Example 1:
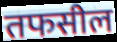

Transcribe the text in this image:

तफसील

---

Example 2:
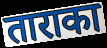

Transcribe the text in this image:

ताराका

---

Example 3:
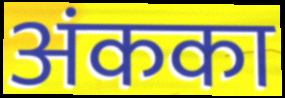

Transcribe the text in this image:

अंकका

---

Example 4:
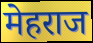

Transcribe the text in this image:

मेहराज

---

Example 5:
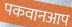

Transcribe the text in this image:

पकवानआप